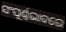
ସଂପୂର୍ଣ୍ଣଭାବରେ